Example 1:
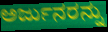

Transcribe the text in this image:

ಅರ್ಜುನರನ್ನು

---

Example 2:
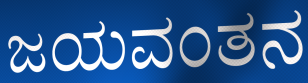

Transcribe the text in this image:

ಜಯವಂತನ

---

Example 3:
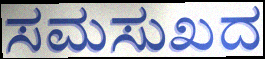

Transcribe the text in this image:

ಸಮಸುಖದ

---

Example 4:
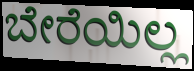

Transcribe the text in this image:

ಬೇರೆಯಿಲ್ಲ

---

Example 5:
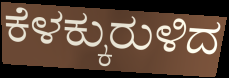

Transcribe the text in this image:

ಕೆಳಕ್ಕುರುಳಿದ